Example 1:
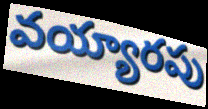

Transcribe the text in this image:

వయ్యారపు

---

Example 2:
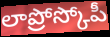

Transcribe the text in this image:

లాప్రోస్కోపీ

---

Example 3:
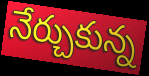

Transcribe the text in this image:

నేర్చుకున్న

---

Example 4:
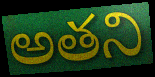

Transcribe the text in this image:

అతని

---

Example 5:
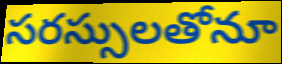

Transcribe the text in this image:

సరస్సులతోనూ